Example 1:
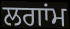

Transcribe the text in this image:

ਲਗਾਂਮ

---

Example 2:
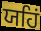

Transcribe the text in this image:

ਯਹਿਂ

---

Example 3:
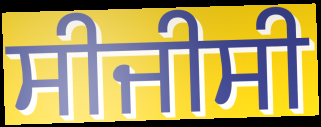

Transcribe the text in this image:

ਸੀਜੀਸੀ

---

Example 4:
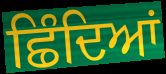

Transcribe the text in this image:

ਛਿੰਦਿਆਂ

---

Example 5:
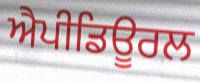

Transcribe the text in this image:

ਐਪੀਡਿਊਰਲ